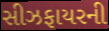
સીઝફાયરની